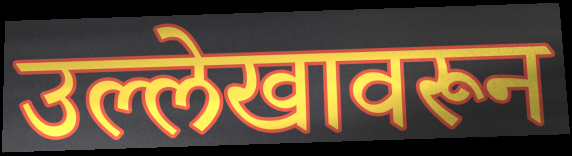
उल्लेखावरून